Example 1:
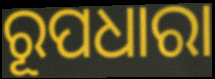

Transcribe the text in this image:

ରୂପଧାରା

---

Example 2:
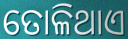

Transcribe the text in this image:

ତୋଳିଥାଏ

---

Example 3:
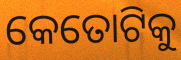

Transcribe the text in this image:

କେତୋଟିକୁ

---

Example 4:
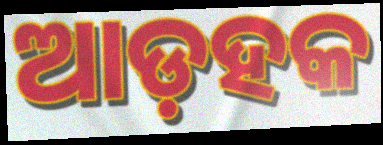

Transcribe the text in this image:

ଆଡ଼ହକ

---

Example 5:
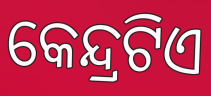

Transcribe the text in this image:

କେନ୍ଦ୍ରଟିଏ